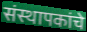
संस्थापकांचे